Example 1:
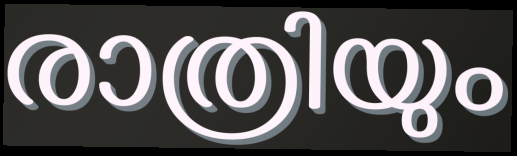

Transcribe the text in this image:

രാത്രിയും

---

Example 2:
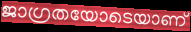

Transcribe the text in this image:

ജാഗ്രതയോടെയാണ്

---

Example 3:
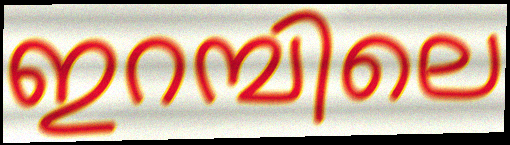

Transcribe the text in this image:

ഇറമ്പിലെ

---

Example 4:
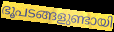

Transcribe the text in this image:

ഭൂപടങ്ങളുണ്ടായി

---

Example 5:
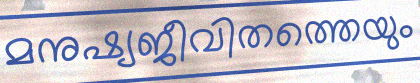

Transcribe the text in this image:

മനുഷ്യജീവിതത്തെയും